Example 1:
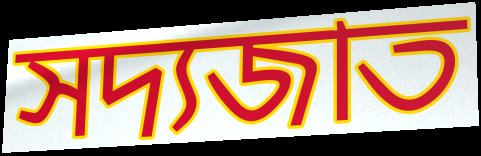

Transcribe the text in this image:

সদ্যজাত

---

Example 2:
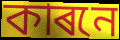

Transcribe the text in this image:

কাৰনে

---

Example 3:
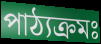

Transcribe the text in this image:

পাঠ্যক্ৰমঃ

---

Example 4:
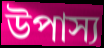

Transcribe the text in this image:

উপাস্য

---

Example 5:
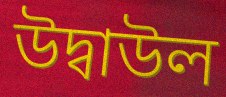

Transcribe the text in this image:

উদ্বাউল